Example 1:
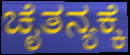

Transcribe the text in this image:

ಚೈತನ್ಯಕ್ಕೆ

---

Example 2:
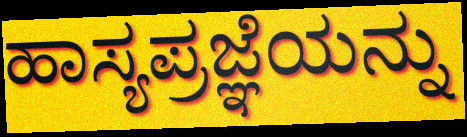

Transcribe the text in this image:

ಹಾಸ್ಯಪ್ರಜ್ಞೆಯನ್ನು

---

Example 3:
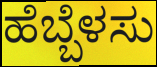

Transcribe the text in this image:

ಹೆಬ್ಬೆಳಸು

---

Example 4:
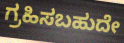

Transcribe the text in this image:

ಗ್ರಹಿಸಬಹುದೇ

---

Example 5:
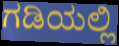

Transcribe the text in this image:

ಗಡಿಯಲ್ಲಿ